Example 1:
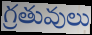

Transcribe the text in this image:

గ్రతువులు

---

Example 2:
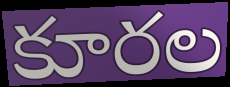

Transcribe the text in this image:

కూరల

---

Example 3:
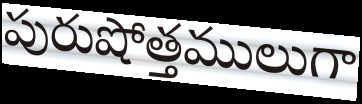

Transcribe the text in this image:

పురుషోత్తములుగా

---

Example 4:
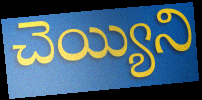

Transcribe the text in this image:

చెయ్యిని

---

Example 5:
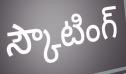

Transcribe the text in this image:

స్కౌటింగ్